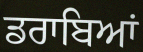
ਡਰਾਬਿਆਂ